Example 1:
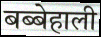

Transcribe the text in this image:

बब्बेहाली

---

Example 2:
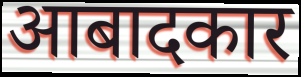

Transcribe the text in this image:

आबादकार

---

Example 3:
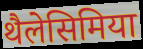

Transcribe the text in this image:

थैलेसिमिया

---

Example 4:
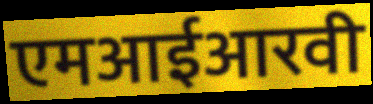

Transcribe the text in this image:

एमआईआरवी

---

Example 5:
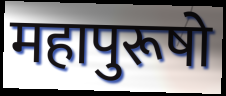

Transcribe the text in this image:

महापुरूषो